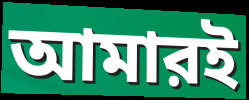
আমারই